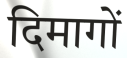
दिमागों